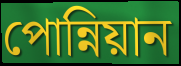
পোন্নিয়ান